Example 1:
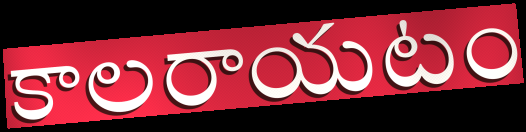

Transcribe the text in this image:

కాలరాయటం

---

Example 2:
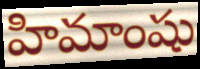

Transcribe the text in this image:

హిమాంషు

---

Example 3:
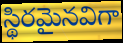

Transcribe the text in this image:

స్థిరమైనవిగా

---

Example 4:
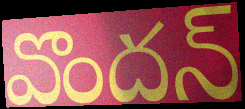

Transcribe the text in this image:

వొందన్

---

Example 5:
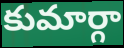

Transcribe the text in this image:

కుమార్గా